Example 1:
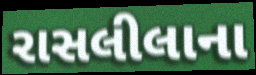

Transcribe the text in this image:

રાસલીલાના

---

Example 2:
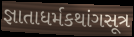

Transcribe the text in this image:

જ્ઞાતાધર્મકથાંગસૂત્ર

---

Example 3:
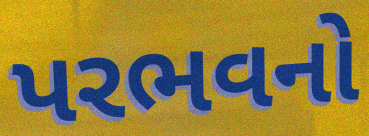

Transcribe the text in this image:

પરભવનો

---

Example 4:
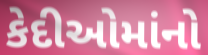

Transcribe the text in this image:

કેદીઓમાંનો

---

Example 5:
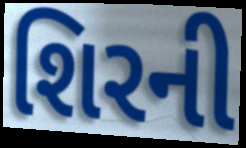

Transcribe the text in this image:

શિરની